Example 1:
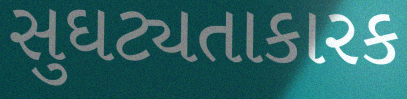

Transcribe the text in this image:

સુઘટ્યતાકારક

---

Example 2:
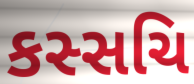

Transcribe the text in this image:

કસ્સચિ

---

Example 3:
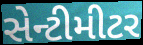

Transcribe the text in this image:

સેન્ટીમીટર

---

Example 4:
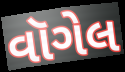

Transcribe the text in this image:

વૉગેલ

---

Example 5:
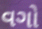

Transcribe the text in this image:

વગો